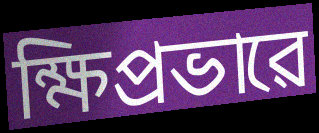
ক্ষিপ্ৰভাৱে